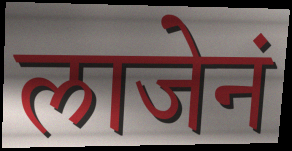
लाजेनं